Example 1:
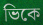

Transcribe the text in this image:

ভিকে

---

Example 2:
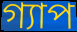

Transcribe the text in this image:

গ্যাপ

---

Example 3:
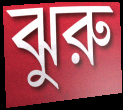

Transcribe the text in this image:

ঝুরু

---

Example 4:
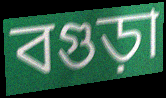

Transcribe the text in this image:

বগুড়া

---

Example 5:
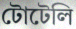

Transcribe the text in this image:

টোটেলি